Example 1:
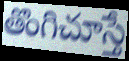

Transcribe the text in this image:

తొంగిచూస్తే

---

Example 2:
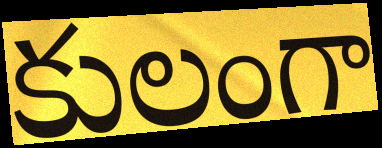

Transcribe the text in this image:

కులంగా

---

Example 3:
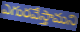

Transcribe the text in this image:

ఎగురవేస్తామని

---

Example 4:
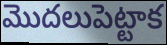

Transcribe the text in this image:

మొదలుపెట్టాక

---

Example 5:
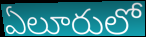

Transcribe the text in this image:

ఏలూరులో